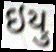
ઇયુ